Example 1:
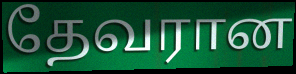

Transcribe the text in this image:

தேவரான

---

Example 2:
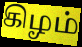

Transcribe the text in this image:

கிழம்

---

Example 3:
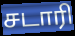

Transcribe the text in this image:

சடாரி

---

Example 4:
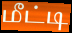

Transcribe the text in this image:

மீட்டி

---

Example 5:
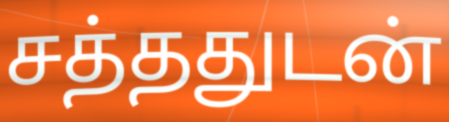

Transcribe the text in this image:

சத்ததுடன்